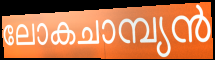
ലോകചാമ്പ്യൻ